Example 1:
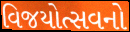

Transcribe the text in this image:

વિજયોત્સવનો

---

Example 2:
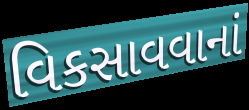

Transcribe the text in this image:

વિકસાવવાનાં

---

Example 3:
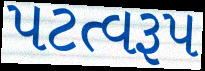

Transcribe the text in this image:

પટત્વરૂપ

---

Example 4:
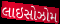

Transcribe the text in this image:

લાઇસોઝોમ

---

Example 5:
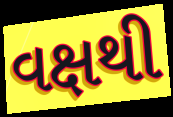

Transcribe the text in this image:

વક્ષથી